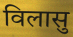
विलासु